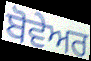
ਬੋਵੇਅਰ